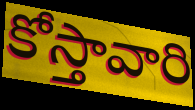
కోస్తావారి